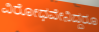
ವಿರೋಧವೇನಿದ್ದರೂ